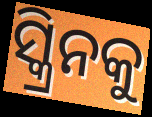
ସ୍କ୍ରିନକୁ